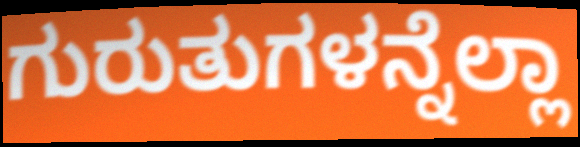
ಗುರುತುಗಳನ್ನೆಲ್ಲಾ